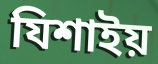
যিশাইয়